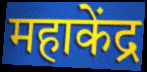
महाकेंद्र